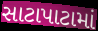
સાટાપાટામાં